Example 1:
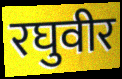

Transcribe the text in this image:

रघुवीर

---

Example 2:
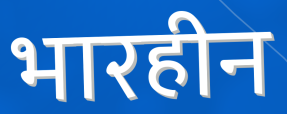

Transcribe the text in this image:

भारहीन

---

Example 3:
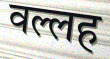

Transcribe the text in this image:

वल्लह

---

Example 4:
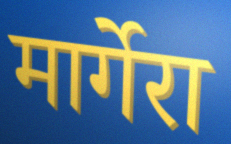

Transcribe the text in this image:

मार्गेरा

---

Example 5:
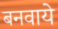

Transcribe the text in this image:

बनवाये